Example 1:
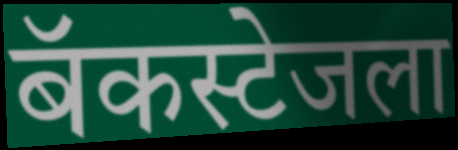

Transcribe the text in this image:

बॅकस्टेजला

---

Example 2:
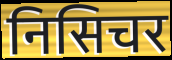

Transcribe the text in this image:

निसिचर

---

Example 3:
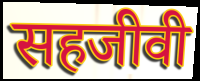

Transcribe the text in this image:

सहजीवी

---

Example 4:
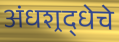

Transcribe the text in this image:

अंधश्रद्धेचे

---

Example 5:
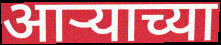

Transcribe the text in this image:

आऱ्याच्या